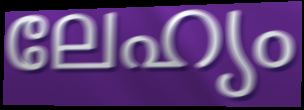
ലേഹ്യം